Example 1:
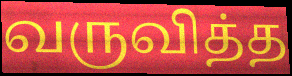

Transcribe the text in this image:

வருவித்த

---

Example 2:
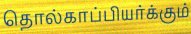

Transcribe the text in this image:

தொல்காப்பியர்க்கும்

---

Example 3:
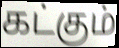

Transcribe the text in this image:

கட்கும்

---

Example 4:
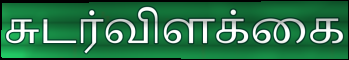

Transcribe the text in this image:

சுடர்விளக்கை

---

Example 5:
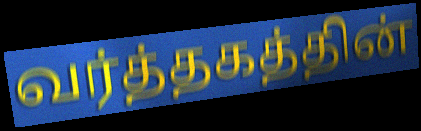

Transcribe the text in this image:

வர்த்தகத்தின்